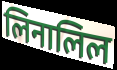
लिनालिल